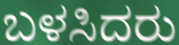
ಬಳಸಿದರು